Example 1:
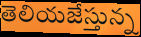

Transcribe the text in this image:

తెలియజేస్తున్న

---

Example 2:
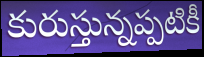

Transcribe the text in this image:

కురుస్తున్నప్పటికీ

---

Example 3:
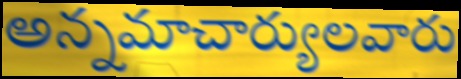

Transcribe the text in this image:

అన్నమాచార్యులవారు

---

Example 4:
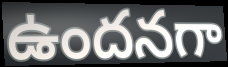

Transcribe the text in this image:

ఉందనగా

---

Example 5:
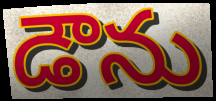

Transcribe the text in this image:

డౌను